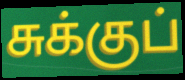
சுக்குப்